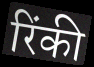
रिंकी